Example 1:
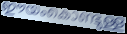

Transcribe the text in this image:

ഈയംകൊണ്ടുള്ള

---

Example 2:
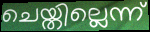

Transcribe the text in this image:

ചെയ്തില്ലെന്ന്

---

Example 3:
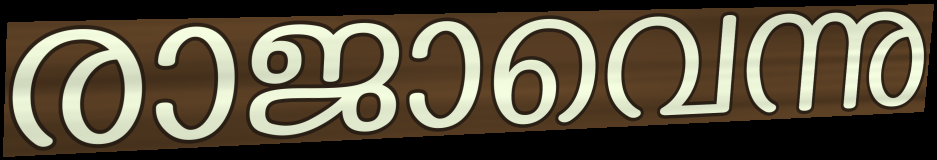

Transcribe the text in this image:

രാജാവെന്നു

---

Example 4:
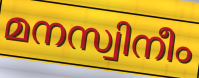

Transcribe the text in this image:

മനസ്വിനീം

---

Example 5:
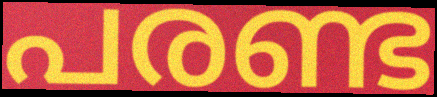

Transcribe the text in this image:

പരണ്ട